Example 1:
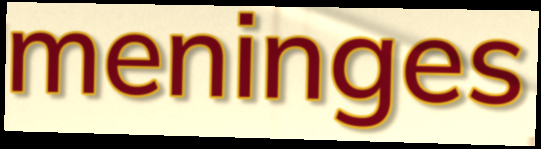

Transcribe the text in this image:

meninges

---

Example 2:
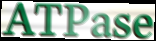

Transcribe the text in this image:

ATPase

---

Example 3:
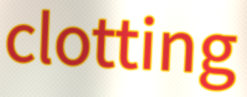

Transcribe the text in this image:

clotting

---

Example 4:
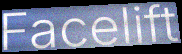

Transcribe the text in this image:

Facelift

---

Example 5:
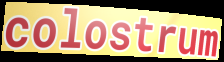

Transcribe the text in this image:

colostrum